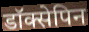
डॉक्सेपिन